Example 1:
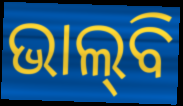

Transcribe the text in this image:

ଭାଲ୍‌ବି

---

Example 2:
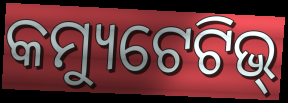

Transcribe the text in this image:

କମ୍ୟୁଟେଟିଭ୍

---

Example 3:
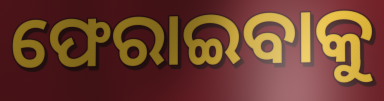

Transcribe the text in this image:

ଫେରାଇବାକୁ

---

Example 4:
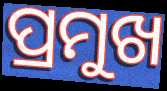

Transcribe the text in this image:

ପ୍ରମୁଖ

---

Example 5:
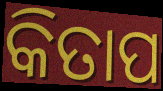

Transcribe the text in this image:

କିତାପ